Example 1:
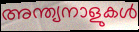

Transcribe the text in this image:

അന്ത്യനാളുകൾ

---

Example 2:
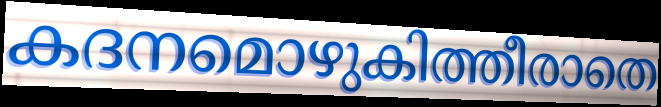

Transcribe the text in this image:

കദനമൊഴുകിത്തീരാതെ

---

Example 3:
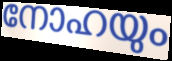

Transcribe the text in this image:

നോഹയും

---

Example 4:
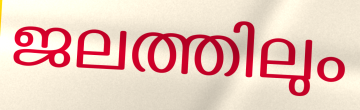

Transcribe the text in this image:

ജലത്തിലും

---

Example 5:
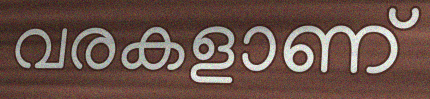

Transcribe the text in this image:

വരകളാണ്